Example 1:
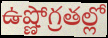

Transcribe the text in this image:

ఉష్ణోగ్రతల్లో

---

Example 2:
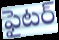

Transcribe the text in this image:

ఫైటర్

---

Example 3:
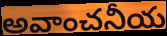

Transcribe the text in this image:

అవాంచనీయ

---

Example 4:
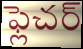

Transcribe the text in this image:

ఫ్లెచర్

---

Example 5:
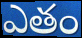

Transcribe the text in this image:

ఎతం